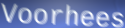
Voorhees